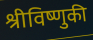
श्रीविष्णुकी